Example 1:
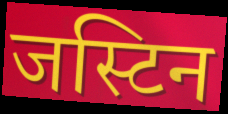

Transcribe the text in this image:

जस्टिन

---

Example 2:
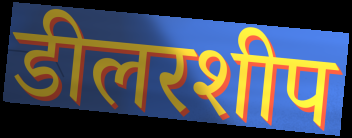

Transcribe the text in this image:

डीलरशीप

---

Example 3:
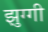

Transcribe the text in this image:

झुग्गी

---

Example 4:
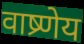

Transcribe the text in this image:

वाष्र्णेय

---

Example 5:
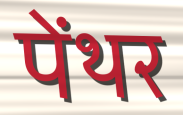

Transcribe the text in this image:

पेंथर